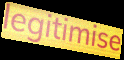
legitimise